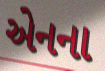
એનના